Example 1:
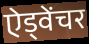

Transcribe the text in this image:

ऐड्वेंचर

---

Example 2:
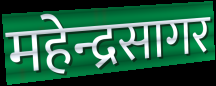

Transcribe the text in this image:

महेन्द्रसागर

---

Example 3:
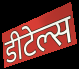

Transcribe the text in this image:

डीटेल्स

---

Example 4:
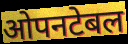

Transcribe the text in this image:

ओपनटेबल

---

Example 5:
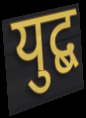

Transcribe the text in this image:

युद्ब